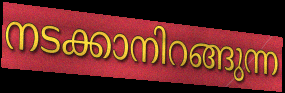
നടക്കാനിറങ്ങുന്ന